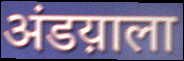
अंडय़ाला